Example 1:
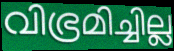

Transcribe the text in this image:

വിഭ്രമിച്ചില്ല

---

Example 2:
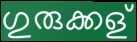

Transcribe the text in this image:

ഗുരുക്കള്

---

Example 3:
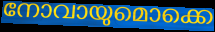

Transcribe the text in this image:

നോവായുമൊക്കെ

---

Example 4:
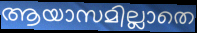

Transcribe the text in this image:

ആയാസമില്ലാതെ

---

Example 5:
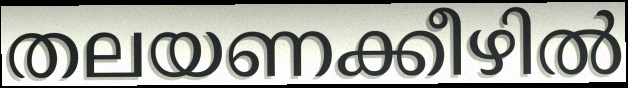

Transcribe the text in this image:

തലയണക്കീഴിൽ